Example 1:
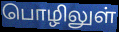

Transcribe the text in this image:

பொழிலுள்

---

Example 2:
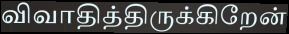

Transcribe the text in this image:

விவாதித்திருக்கிறேன்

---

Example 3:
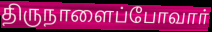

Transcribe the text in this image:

திருநாளைப்போவார்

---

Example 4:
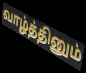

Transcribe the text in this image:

வாழ்த்தினும்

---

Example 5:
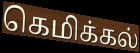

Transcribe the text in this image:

கெமிக்கல்